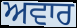
ਅਵਾਰ